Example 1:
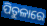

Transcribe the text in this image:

ପିତୁଳାରେ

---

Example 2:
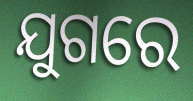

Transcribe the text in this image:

ଯୁଗରେ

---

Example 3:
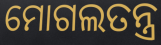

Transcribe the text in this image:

ମୋଗଲତନ୍ତ୍ର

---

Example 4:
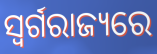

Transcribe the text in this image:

ସ୍ୱର୍ଗରାଜ୍ୟରେ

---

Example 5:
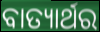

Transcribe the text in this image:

ବାତ୍ୟାର୍ଥର